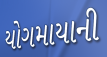
યોગમાયાની